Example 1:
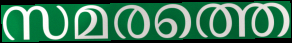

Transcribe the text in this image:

സമരത്തെ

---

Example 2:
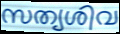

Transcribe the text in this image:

സത്യശിവ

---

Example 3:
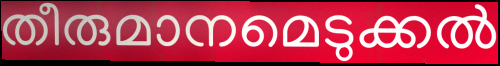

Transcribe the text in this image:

തീരുമാനമെടുക്കൽ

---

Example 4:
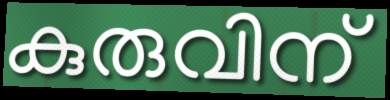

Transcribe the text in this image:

കുരുവിന്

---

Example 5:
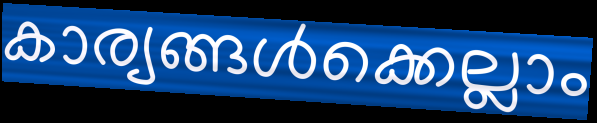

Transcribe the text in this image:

കാര്യങ്ങൾക്കെല്ലാം